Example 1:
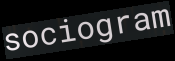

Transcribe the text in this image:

sociogram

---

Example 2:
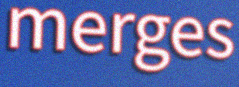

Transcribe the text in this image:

merges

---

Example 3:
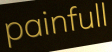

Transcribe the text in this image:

painfull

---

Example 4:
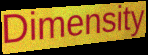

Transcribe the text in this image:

Dimensity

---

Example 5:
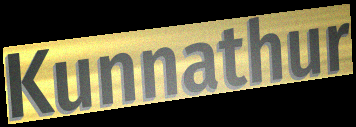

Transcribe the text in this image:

Kunnathur